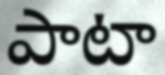
పాటా